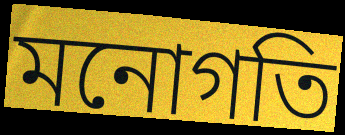
মনোগতি